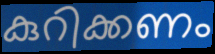
കുറിക്കണം